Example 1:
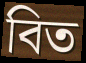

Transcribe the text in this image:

বিত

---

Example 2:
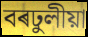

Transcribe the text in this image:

বৰঢুলীয়া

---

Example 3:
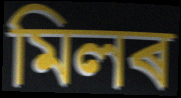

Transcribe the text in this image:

মিলৰ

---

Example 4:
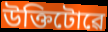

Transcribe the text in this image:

উক্তিটোৱে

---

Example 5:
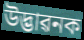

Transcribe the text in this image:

উদ্ভাৱনক